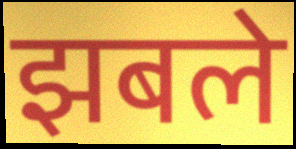
झबले